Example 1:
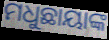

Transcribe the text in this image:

ମଧୁଛାୟାଙ୍କ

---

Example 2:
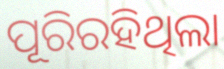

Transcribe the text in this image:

ପୂରିରହିଥିଲା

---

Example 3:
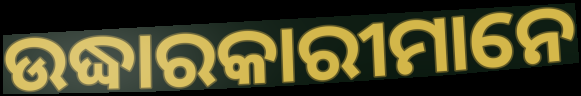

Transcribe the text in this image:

ଉଦ୍ଧାରକାରୀମାନେ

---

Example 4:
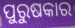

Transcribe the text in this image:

ପୁରୁଷକାର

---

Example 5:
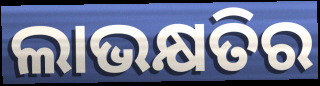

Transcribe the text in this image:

ଲାଭକ୍ଷତିର